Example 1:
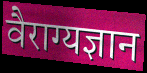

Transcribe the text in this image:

वैराग्यज्ञान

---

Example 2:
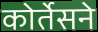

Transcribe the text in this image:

कोर्तेसने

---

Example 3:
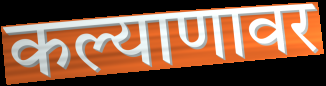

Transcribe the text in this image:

कल्याणावर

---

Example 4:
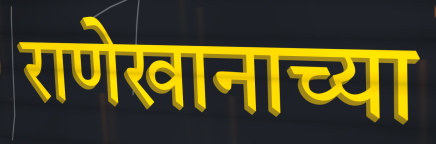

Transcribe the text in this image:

राणेखानाच्या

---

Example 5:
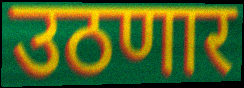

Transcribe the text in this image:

उठणार